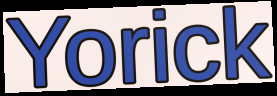
Yorick